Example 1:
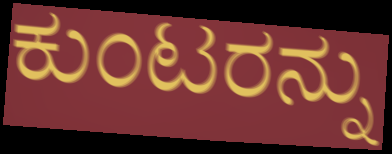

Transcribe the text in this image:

ಕುಂಟರನ್ನು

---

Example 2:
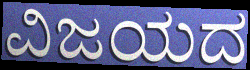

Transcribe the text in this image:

ವಿಜಯದ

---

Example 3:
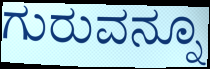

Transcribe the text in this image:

ಗುರುವನ್ನೂ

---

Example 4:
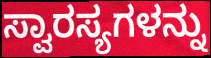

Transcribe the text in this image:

ಸ್ವಾರಸ್ಯಗಳನ್ನು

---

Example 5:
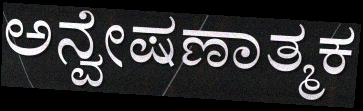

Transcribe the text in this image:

ಅನ್ವೇಷಣಾತ್ಮಕ